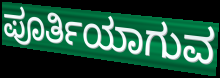
ಪೂರ್ತಿಯಾಗುವ